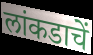
लांकडाचें